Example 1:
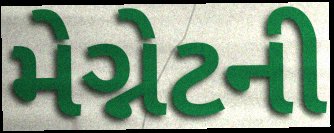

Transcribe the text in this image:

મેગ્નેટની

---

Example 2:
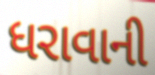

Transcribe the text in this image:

ધરાવાની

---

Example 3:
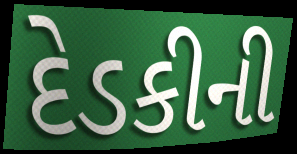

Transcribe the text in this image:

દેડકીની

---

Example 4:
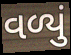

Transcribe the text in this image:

વળ્યું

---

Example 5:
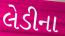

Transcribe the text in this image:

લેડીના